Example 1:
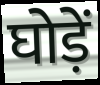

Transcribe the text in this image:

घोड़ें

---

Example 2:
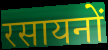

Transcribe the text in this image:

रसायनों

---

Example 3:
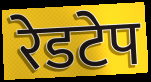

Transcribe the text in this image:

रेडटेप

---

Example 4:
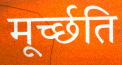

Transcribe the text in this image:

मूर्च्छति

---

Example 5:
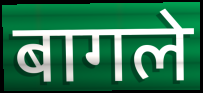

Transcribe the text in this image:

बागले